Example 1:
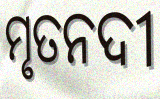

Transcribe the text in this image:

ମୃତନଦୀ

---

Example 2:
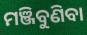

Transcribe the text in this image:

ମଞ୍ଜିବୁଣିବା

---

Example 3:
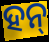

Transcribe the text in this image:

ହନ୍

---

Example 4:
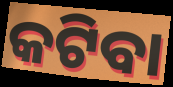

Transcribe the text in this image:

କଟିବା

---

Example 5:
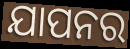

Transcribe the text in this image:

ଯାପନର